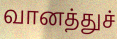
வானத்துச்